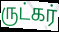
ருட்கர்